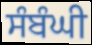
ਸੰਬੰਘੀ